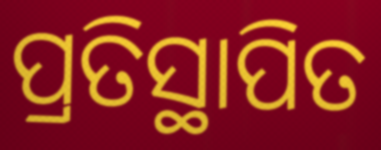
ପ୍ରତିସ୍ଥାପିତ